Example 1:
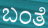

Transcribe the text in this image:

ಬಂತೆ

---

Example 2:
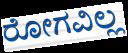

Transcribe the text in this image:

ರೋಗವಿಲ್ಲ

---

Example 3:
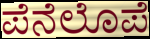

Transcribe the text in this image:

ಪೆನೆಲೊಪೆ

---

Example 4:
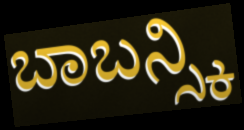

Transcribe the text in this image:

ಬಾಬನ್ಸ್ಕಿ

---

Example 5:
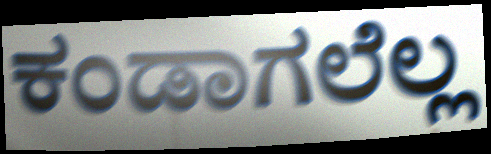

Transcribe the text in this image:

ಕಂಡಾಗಲೆಲ್ಲ